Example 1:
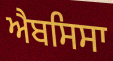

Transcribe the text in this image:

ਐਬਸਿਸਾ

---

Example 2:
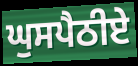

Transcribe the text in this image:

ਘੁਸਪੈਠੀਏ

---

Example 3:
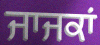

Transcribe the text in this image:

ਜਾਜਕਾਂ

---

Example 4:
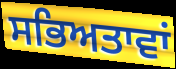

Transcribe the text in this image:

ਸਭਿਅਤਾਵਾਂ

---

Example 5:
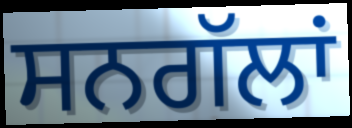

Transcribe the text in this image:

ਸਨਗੱਲਾਂ